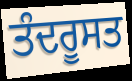
ਤੰਦਰੂਸਤ